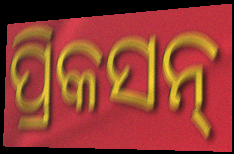
ପ୍ରିକସନ୍